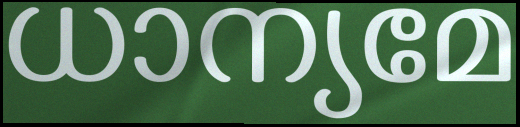
ധാന്യമേ